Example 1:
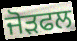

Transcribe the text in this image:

ਜੋੜਫਲ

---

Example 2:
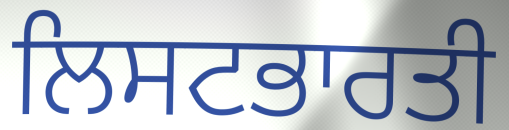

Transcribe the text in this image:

ਲਿਸਟਭਾਰਤੀ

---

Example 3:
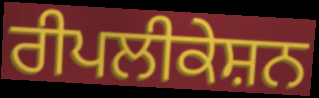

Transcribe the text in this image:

ਰੀਪਲੀਕੇਸ਼ਨ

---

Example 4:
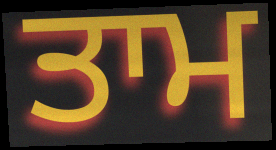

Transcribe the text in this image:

ਤਾਮ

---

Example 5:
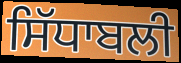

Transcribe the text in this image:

ਸਿੱਧਾਬਲੀ